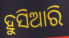
ହୁସିଆରି